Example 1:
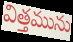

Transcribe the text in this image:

విత్తమును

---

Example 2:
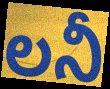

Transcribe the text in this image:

లనీ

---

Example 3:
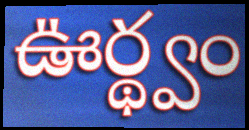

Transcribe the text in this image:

ఊర్థ్వం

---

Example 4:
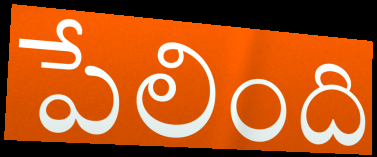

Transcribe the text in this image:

పేలింది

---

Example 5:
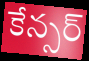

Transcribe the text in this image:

కేన్సర్